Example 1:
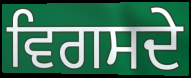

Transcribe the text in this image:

ਵਿਗਸਦੇ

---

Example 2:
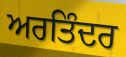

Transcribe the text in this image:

ਅਰਤਿੰਦਰ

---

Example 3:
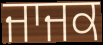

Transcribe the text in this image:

ਜਾਜਕ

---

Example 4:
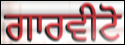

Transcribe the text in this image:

ਗਾਰਵੀਟੋ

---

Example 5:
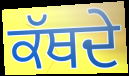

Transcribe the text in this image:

ਕੱਥਦੇ